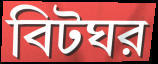
বিটঘর